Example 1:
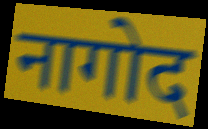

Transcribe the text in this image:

नागोद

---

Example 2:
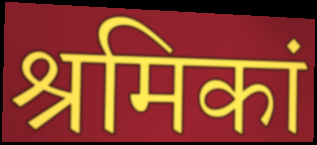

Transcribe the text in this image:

श्रमिकां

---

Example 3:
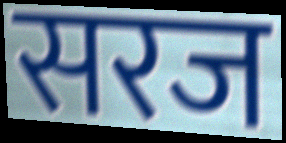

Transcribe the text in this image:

सरज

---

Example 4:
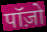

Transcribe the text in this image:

पॉज़ो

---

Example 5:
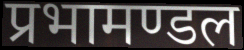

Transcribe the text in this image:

प्रभामण्डल